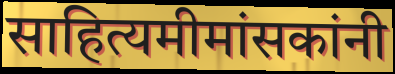
साहित्यमीमांसकांनी